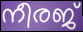
നീരജ്